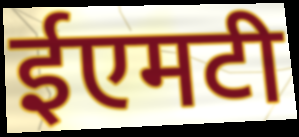
ईएमटी